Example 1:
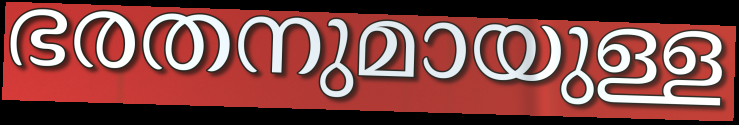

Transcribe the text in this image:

ഭരതനുമായുള്ള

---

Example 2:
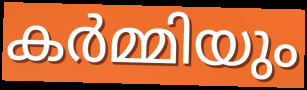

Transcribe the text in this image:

കർമ്മിയും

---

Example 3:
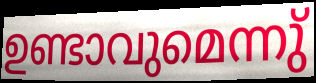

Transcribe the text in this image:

ഉണ്ടാവുമെന്നു്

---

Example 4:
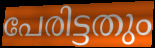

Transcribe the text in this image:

പേരിട്ടതും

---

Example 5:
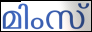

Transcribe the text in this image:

മിംസ്